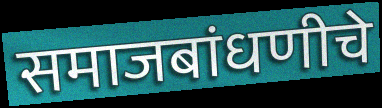
समाजबांधणीचे